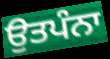
ਉਤਪੰਨਾ